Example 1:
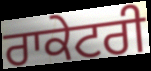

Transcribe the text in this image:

ਰਾਕੇਟਰੀ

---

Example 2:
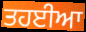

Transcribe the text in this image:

ਤਹਈਆ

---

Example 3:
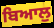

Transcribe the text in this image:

ਬਿਆਲੁ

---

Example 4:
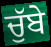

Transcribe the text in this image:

ਚੁੱਬੇ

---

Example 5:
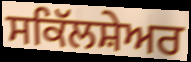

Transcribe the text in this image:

ਸਕਿੱਲਸ਼ੇਅਰ